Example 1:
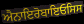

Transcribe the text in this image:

ਐਨਾਇਰੋਬਾਇਓਸਿਸ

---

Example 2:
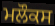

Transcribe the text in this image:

ਮਲੌਕਸ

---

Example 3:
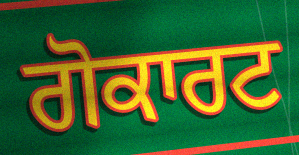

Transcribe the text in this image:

ਗੋਕਾਰਟ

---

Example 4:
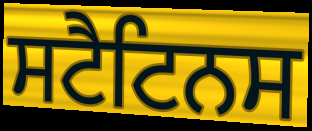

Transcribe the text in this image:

ਸਟੈਟਿਨਸ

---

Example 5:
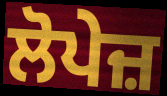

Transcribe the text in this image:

ਲੋਪੇਜ਼